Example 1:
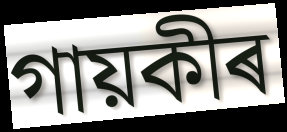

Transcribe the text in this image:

গায়কীৰ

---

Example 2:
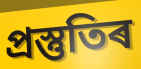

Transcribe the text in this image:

প্ৰস্তুতিৰ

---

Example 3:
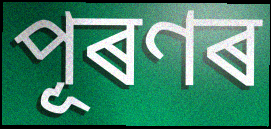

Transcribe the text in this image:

পূৰণৰ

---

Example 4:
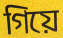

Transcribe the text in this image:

গিয়ে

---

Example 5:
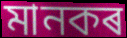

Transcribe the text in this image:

মানকৰ